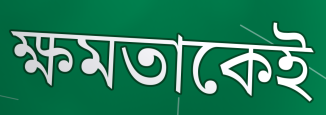
ক্ষমতাকেই